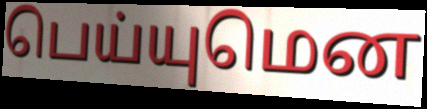
பெய்யுமென